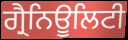
ਗ੍ਰੈਨਿਊਲਿਟੀ